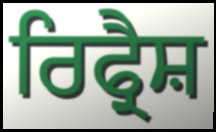
ਰਿਫ੍ਰੈਸ਼